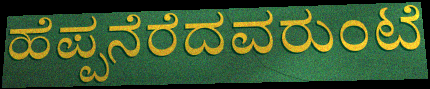
ಹೆಪ್ಪನೆರೆದವರುಂಟೆ